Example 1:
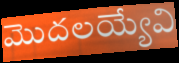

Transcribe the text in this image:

మొదలయ్యేవి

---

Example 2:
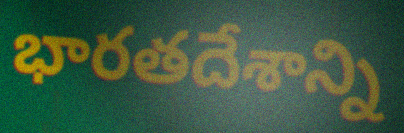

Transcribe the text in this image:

భారతదేశాన్ని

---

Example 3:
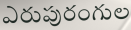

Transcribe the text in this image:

ఎరుపురంగుల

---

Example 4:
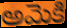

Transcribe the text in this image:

అమెకి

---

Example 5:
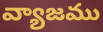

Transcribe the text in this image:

వ్యాజము